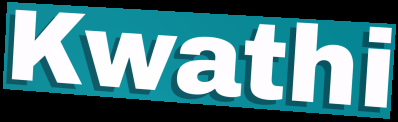
Kwathi